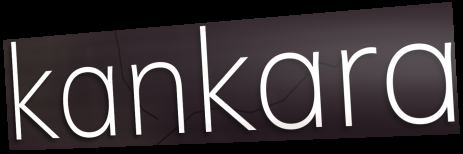
kankara